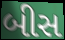
બીસ